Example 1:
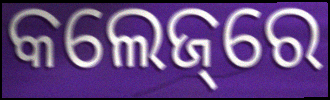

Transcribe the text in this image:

କଲେଜ୍‌ରେ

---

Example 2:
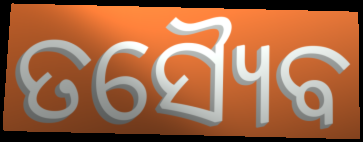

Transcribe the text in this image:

ତସ୍ୟୈବ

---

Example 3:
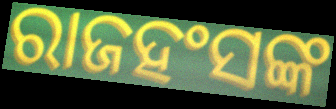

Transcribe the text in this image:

ରାଜହଂସଙ୍କ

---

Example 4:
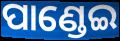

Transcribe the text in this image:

ପାଣ୍ଡେଇ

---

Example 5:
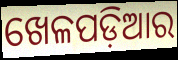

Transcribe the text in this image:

ଖେଳପଡ଼ିଆର